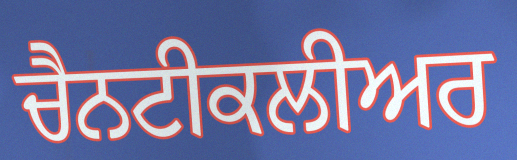
ਚੈਨਟੀਕਲੀਅਰ